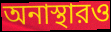
অনাস্থারও